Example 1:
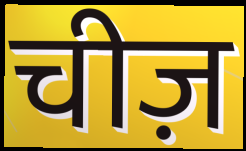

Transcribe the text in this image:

चीज़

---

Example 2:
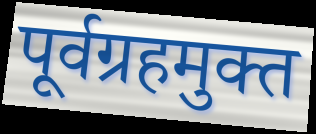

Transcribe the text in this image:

पूर्वग्रहमुक्त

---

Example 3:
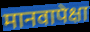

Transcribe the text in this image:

मानवापेक्षा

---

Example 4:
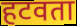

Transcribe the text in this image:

हटवता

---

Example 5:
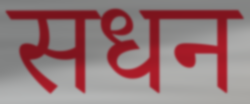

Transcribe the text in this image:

सधन